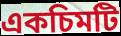
একচিমটি